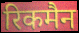
रिकमैन